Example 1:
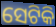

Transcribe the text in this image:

ସେଟିକି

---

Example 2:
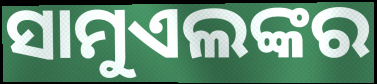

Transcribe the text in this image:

ସାମୁଏଲଙ୍କର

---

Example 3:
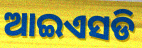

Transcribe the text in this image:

ଆଇଏସଡି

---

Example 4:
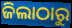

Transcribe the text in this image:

ଜିଲାଠାରୁ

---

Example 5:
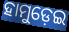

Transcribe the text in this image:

ହାମୁଡ଼େଇ